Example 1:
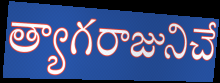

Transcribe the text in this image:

త్యాగరాజునిచే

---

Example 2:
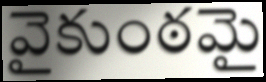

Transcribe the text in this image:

వైకుంఠమై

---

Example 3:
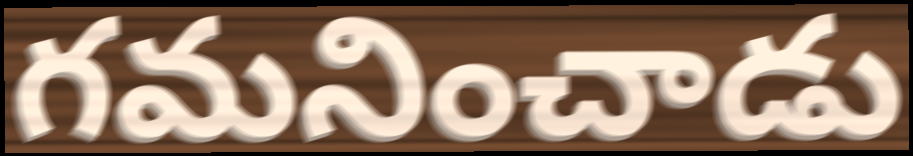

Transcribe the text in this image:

గమనించాడు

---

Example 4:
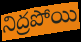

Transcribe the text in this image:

నిద్రపోయి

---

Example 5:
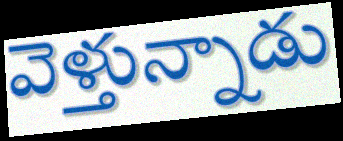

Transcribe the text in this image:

వెళ్తున్నాడు